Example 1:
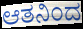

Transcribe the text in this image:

ಆತನಿಂದ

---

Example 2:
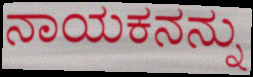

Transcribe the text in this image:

ನಾಯಕನನ್ನು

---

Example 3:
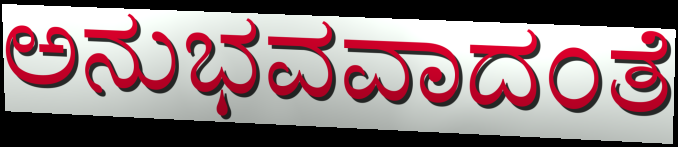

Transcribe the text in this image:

ಅನುಭವವಾದಂತೆ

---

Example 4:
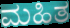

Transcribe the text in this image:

ಮಹಿತ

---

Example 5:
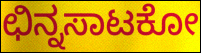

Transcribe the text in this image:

ಛಿನ್ನಸಾಟಕೋ